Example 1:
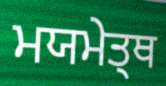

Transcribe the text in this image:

ਮਯਮੇਤ੍ਥ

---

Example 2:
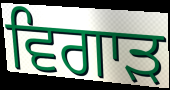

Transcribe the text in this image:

ਵਿਗਾਡ਼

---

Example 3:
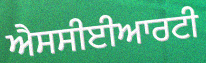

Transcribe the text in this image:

ਐਸਸੀਈਆਰਟੀ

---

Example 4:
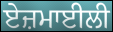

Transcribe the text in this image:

ਏਜ਼ਮਾਈਲੀ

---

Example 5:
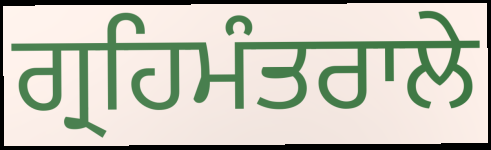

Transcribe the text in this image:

ਗ੍ਰਹਿਮੰਤਰਾਲੇ